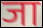
जा